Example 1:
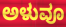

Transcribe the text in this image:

ಅಳುವೂ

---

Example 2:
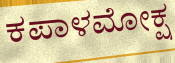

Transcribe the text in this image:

ಕಪಾಳಮೋಕ್ಷ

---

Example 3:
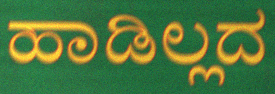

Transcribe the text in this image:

ಹಾಡಿಲ್ಲದ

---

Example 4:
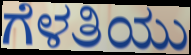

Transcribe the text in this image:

ಗೆಳತಿಯು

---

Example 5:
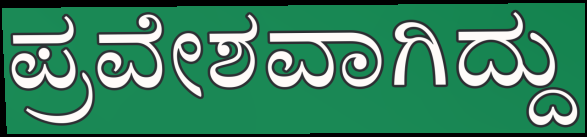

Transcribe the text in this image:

ಪ್ರವೇಶವಾಗಿದ್ದು